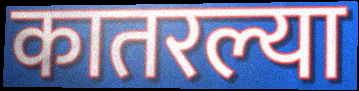
कातरल्या